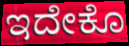
ಇದೇಕೊ